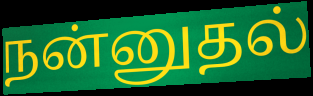
நன்னுதல்